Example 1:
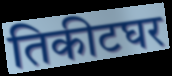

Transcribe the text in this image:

तिकीटघर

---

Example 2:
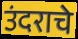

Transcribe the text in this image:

उंदराचे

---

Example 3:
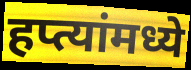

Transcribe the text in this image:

हप्त्यांमध्ये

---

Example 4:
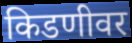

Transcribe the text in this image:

किडणीवर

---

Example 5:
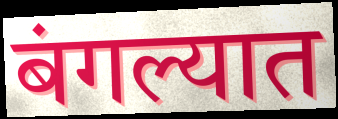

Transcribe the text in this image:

बंगल्यात